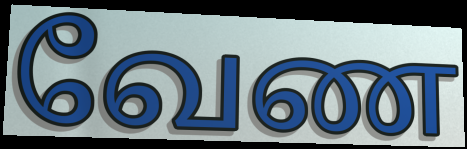
வேண